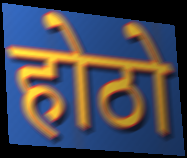
होठो